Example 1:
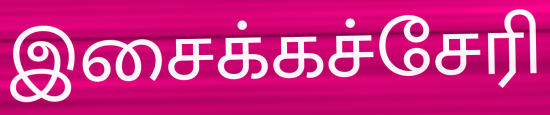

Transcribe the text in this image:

இசைக்கச்சேரி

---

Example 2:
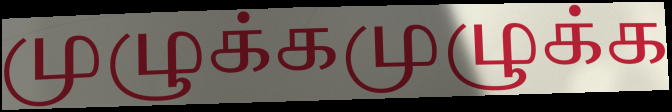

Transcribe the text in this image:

முழுக்கமுழுக்க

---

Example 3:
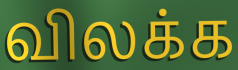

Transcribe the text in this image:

விலக்க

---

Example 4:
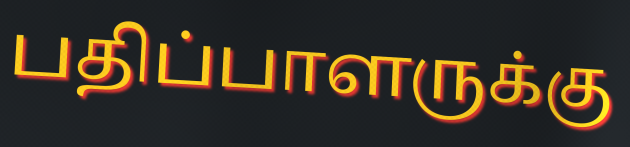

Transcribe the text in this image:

பதிப்பாளருக்கு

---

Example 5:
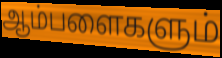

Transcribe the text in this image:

ஆம்பளைகளும்